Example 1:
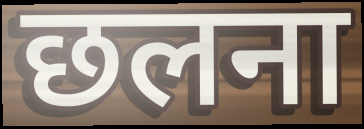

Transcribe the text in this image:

छलना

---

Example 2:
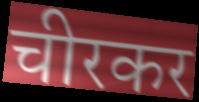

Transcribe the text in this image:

चीरकर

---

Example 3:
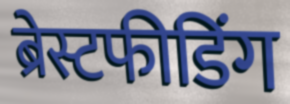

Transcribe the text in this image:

ब्रेस्टफीडिंग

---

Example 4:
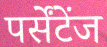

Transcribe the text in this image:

पर्सेंटेंज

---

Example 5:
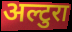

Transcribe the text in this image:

अल्टुरा